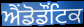
ਐਂਡੋਡੌਂਟਿਕ